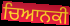
ਚਿਆਨਕੀ